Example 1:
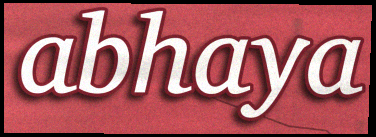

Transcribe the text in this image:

abhaya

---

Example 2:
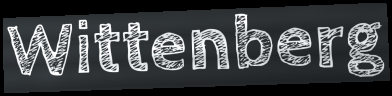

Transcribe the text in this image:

Wittenberg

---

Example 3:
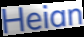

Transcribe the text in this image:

Heian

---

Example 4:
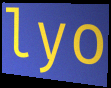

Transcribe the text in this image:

lyo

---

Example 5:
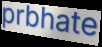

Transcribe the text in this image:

prbhate